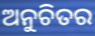
ଅନୁଚିତର